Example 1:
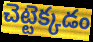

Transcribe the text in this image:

చెట్టెక్కడం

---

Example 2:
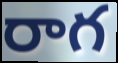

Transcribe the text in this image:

రాగ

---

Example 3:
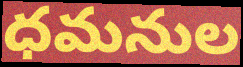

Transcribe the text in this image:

ధమనుల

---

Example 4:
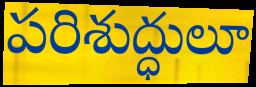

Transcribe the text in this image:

పరిశుద్ధులూ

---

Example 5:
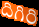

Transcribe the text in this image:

దిగిరి